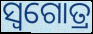
ସ୍ୱଗୋତ୍ର